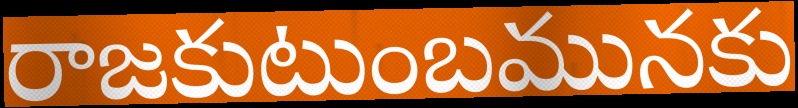
రాజకుటుంబమునకు